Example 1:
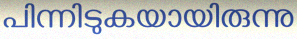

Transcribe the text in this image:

പിന്നിടുകയായിരുന്നു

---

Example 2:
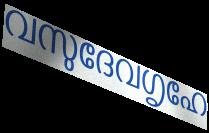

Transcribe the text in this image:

വസുദേവഗൃഹേ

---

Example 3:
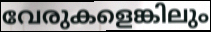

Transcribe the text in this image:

വേരുകളെങ്കിലും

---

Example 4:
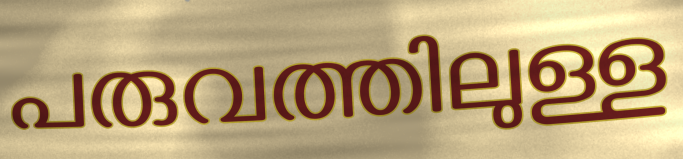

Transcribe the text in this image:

പരുവത്തിലുള്ള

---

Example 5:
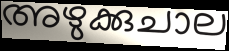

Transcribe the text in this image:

അഴുക്കുചാല